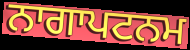
ਨਾਗਾਪਟਨਮ